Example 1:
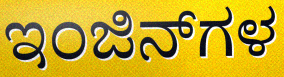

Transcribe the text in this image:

ಇಂಜಿನ್‌ಗಳ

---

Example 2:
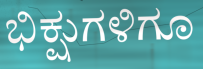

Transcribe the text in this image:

ಭಿಕ್ಷುಗಳಿಗೂ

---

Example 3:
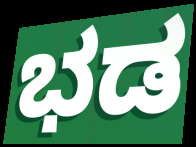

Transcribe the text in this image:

ಭಡ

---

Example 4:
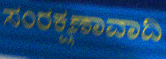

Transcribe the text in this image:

ಸಂರಕ್ಷಣಾವಾದಿ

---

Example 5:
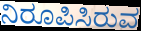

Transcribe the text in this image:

ನಿರೂಪಿಸಿರುವ